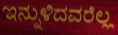
ಇನ್ನುಳಿದವರೆಲ್ಲ